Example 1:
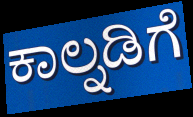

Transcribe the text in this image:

ಕಾಲ್ನಡಿಗೆ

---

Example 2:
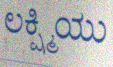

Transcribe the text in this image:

ಲಕ್ಷ್ಮಿಯು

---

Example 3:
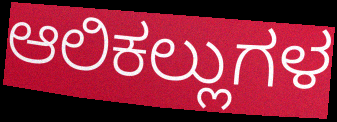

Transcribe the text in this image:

ಆಲಿಕಲ್ಲುಗಳ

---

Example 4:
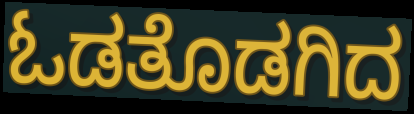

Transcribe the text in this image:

ಓಡತೊಡಗಿದ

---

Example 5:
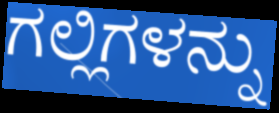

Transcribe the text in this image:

ಗಲ್ಲಿಗಳನ್ನು